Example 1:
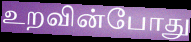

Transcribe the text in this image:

உறவின்போது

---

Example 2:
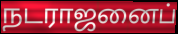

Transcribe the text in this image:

நடராஜனைப்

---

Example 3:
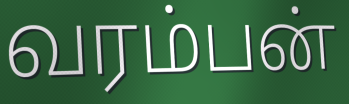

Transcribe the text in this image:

வரம்பன்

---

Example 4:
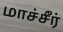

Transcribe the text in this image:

மாச்சீர்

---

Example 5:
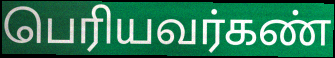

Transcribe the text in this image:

பெரியவர்கண்